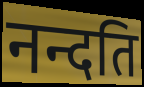
नन्दति